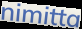
nimitta